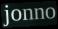
jonno